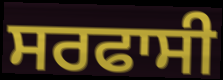
ਸਰਫਾਸੀ